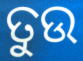
ତୁଉ